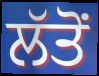
ਲੱਤੋਂ